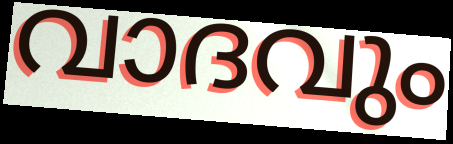
വാദവും